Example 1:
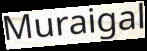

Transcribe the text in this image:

Muraigal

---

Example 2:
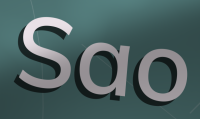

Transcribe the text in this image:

Sao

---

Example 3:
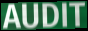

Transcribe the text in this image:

AUDIT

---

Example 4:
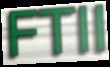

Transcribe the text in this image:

FTII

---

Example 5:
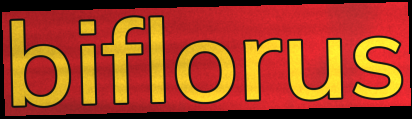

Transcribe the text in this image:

biflorus